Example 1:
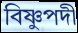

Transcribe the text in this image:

বিষ্ণুপদী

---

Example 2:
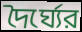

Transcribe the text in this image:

দৈর্ঘ্যের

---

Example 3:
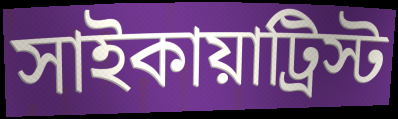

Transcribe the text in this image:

সাইকায়াট্রিস্ট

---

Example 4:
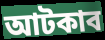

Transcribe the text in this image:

আটকাব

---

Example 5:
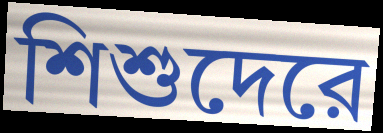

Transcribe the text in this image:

শিশুদেরে